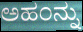
ಅಹಂನ್ನು